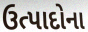
ઉત્પાદોના